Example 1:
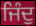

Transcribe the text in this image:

ਜਿੰਦੁ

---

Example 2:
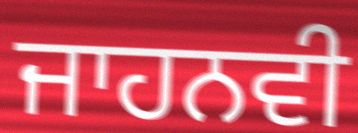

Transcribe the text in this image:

ਜਾਹਨਵੀ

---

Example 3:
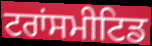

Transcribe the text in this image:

ਟਰਾਂਸਮੀਟਿਡ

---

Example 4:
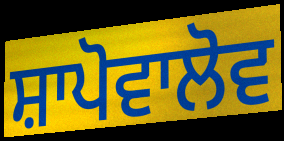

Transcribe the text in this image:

ਸ਼ਾਪੋਵਾਲੋਵ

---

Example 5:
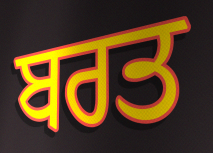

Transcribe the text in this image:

ਬਰਤ